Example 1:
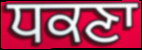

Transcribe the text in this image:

ਧਕਣਾ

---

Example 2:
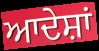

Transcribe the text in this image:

ਆਦੇਸ਼ਾਂ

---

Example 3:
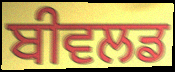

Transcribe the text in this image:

ਬੀਵਲਡ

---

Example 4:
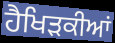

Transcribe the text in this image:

ਹੈਖਿੜਕੀਆਂ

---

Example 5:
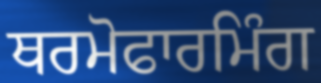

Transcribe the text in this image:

ਥਰਮੋਫਾਰਮਿੰਗ